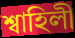
শ্বাহিলী